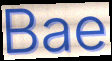
Bae